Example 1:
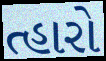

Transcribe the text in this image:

ત્હારો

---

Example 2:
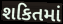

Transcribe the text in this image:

શકિતમાં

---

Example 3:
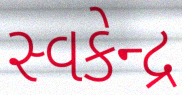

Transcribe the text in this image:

સ્વકેન્દ્ર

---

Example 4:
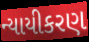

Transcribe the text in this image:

ન્યાયીકરણ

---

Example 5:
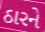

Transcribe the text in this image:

ઠારને